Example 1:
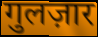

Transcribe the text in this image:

गुलज़ार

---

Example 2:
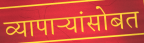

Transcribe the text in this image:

व्यापाऱ्यांसोबत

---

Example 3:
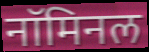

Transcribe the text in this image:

नॉमिनल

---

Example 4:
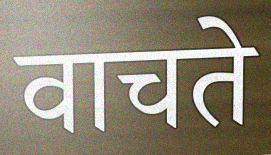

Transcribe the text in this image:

वाचते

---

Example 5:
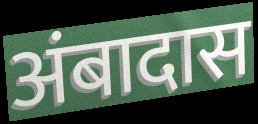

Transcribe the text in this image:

अंबादास